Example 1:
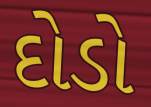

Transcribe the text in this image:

દોડો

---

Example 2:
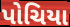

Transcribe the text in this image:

પોચિયા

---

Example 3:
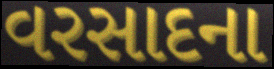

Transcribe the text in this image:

વરસાદના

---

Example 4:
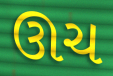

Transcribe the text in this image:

ઊચ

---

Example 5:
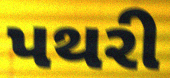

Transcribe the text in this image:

પથરી